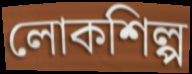
লোকশিল্প